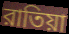
রাতিয়া